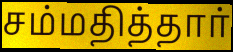
சம்மதித்தார்